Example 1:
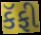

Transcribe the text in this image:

કૅફી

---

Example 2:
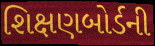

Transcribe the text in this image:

શિક્ષણબોર્ડની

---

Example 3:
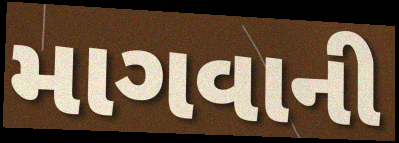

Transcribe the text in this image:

માગવાની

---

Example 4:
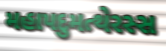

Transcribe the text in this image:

મહાપદુમત્થેરસ્સ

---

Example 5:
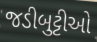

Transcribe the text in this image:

જડીબુટ્ટીઓ